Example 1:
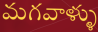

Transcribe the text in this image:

మగవాళ్ళు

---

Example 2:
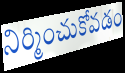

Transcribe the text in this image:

నిర్మించుకోవడం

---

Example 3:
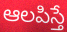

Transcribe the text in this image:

ఆలపిస్తే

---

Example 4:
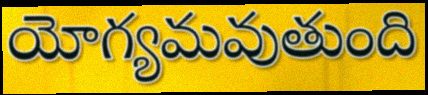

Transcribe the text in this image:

యోగ్యమవుతుంది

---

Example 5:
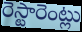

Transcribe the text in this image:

రెస్టారెంట్లు